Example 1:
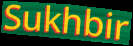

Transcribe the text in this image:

Sukhbir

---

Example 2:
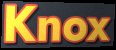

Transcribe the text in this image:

Knox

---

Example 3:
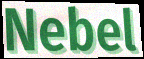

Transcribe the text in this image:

Nebel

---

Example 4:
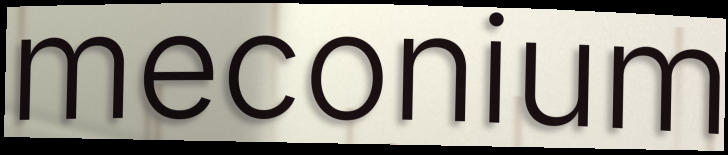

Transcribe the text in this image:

meconium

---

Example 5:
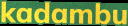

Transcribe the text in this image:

kadambu